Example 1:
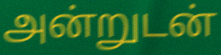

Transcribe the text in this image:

அன்றுடன்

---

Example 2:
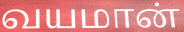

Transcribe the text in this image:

வயமான்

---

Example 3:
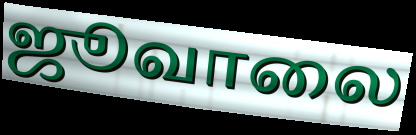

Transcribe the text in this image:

ஜூவாலை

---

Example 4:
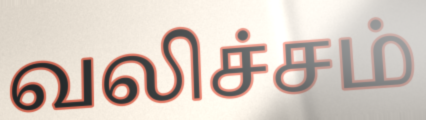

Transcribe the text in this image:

வலிச்சம்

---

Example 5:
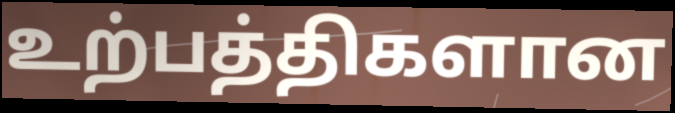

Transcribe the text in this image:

உற்பத்திகளான